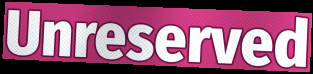
Unreserved